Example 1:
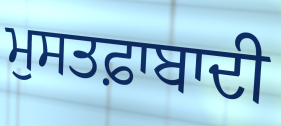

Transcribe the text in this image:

ਮੁਸਤਫ਼ਾਬਾਦੀ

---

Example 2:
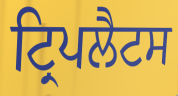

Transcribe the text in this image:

ਟ੍ਰਿਪਲੈਟਸ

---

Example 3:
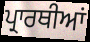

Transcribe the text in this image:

ਪ੍ਰਾਰਥੀਆਂ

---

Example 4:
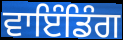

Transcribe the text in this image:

ਵਾਇੰਡਿੰਗ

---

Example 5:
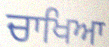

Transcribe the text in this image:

ਚਾਖਿਆ